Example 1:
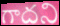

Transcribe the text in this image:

గాదని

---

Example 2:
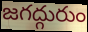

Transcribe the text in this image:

జగద్గురుం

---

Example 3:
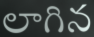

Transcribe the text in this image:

లాగిన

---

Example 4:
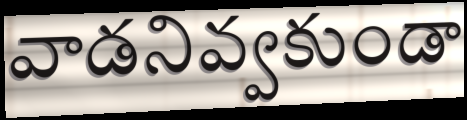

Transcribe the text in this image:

వాడనివ్వకుండా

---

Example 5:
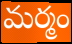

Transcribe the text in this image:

మర్మం